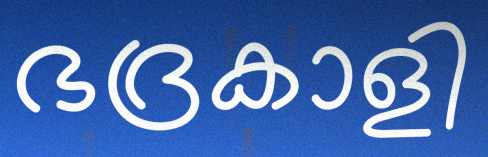
ഭദ്രകാളി